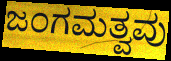
ಜಂಗಮತ್ವವು